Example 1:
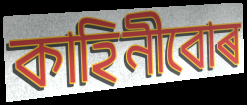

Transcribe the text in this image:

কাহিনীবোৰ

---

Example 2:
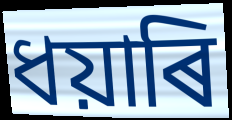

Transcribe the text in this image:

ধয়াৰি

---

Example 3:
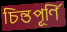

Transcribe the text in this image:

চিন্তপূৰ্ণি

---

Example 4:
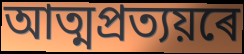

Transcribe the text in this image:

আত্মপ্ৰত্যয়ৰে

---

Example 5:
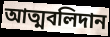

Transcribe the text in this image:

আত্মবলিদান